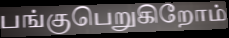
பங்குபெறுகிறோம்